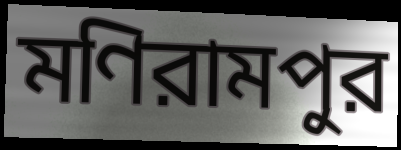
মণিরামপুর